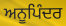
ਅਨੂਪਿੰਦਰ